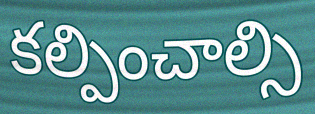
కల్పించాల్సి